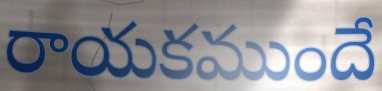
రాయకముందే